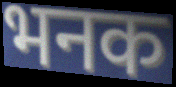
भनक